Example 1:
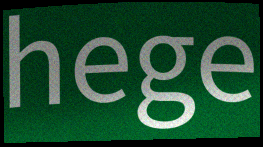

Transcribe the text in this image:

hege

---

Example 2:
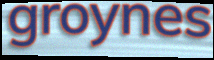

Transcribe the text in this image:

groynes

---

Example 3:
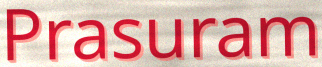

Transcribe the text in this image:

Prasuram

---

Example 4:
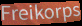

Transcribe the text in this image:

Freikorps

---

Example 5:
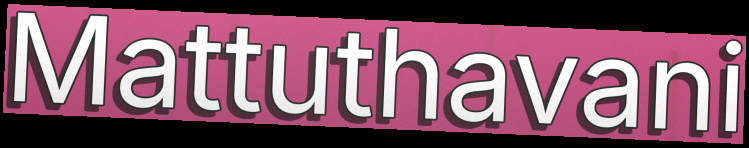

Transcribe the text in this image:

Mattuthavani